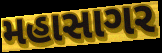
મહાસાગર